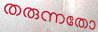
തരുന്നതോ